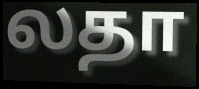
லதா